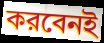
করবেনই